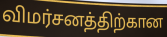
விமர்சனத்திற்கான